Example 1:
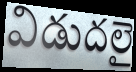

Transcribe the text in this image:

విడుదలై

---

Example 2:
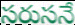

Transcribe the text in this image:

సరుసనే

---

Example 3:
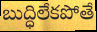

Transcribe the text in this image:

బుద్ధిలేకపోతే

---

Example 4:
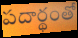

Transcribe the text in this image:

పదార్థంతో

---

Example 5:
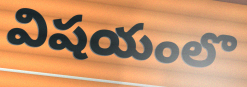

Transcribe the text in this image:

విషయంలొ